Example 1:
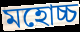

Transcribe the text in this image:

মহোচ্চ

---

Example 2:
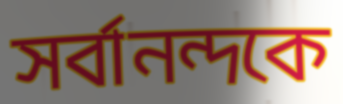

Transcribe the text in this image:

সর্বানন্দকে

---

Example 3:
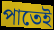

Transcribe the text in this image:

পাতেই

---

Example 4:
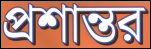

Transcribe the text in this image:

প্রশান্তর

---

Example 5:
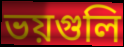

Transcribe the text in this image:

ভয়গুলি